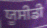
ਯੂਸੀਡੀ